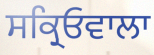
ਸਕ੍ਰਿਓਵਾਲਾ